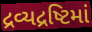
દ્રવ્યદ્રષ્ટિમાં